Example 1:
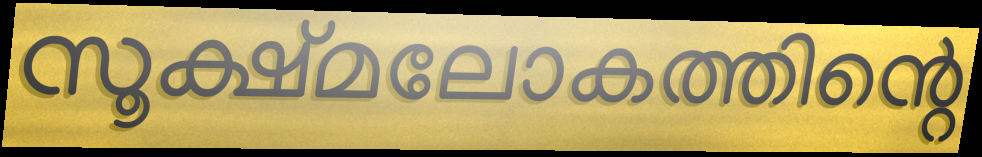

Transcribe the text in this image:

സൂക്ഷ്മലോകത്തിന്റെ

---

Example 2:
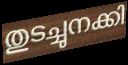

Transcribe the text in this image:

തുടച്ചുനക്കി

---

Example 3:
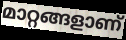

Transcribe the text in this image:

മാറ്റങ്ങളാണ്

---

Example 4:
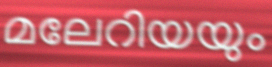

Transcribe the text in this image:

മലേറിയയും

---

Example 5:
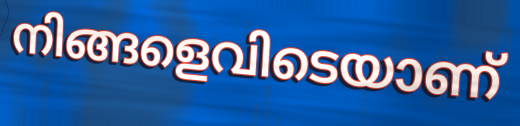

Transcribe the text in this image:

നിങ്ങളെവിടെയാണ്